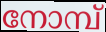
നോമ്പ്